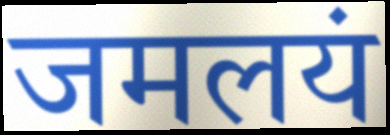
जमलयं